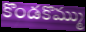
కొండకొమ్ము